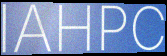
IAHPC